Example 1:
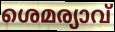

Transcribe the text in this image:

ശെമര്യാവ്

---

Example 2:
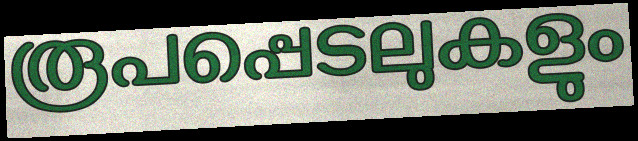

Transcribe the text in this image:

രൂപപ്പെടലുകളും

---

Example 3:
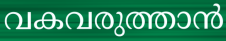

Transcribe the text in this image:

വകവരുത്താൻ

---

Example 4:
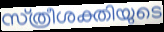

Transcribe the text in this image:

സ്‌ത്രീശക്തിയുടെ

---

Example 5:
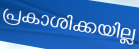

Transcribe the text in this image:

പ്രകാശിക്കയില്ല